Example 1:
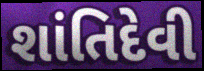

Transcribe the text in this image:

શાંતિદેવી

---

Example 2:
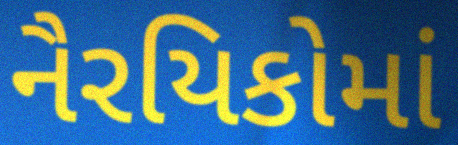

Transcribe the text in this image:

નૈરયિકોમાં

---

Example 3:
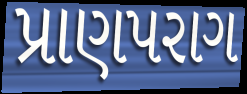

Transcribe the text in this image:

પ્રાણપરાગ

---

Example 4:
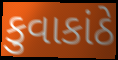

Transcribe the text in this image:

કુવાકાંઠે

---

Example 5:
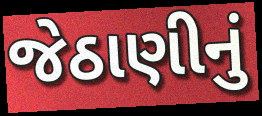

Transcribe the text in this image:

જેઠાણીનું